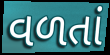
વળતાં